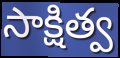
సాక్షిత్వ